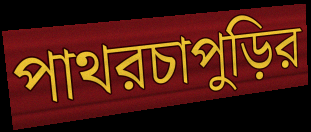
পাথরচাপুড়ির